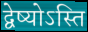
द्वेष्योऽस्ति